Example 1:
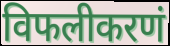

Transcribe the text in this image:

विफलीकरणं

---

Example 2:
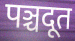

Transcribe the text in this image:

पञ्चदूत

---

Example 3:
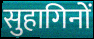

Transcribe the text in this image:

सुहागिनों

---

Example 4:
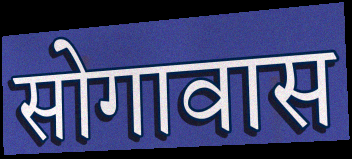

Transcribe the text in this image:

सोगावास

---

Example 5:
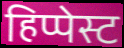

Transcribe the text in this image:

हिप्पेस्ट